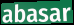
abasar